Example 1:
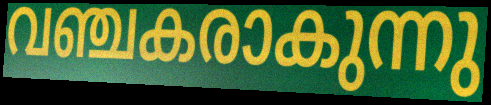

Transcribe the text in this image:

വഞ്ചകരാകുന്നു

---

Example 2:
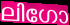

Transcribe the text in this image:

ലിഗോ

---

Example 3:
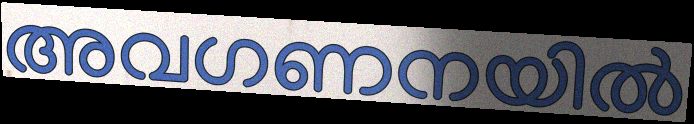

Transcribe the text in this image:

അവഗണനയിൽ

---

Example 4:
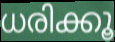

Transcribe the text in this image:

ധരിക്കൂ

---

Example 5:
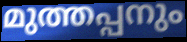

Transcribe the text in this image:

മുത്തപ്പനും